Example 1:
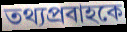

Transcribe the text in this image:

তথ্যপ্রবাহকে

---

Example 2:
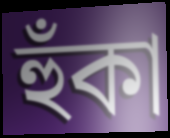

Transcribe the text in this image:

হুঁকা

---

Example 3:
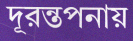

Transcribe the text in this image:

দূরন্তপনায়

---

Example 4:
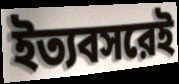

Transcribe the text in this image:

ইত্যবসরেই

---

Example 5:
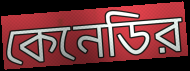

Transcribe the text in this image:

কেনেডির